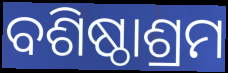
ବଶିଷ୍ଠାଶ୍ରମ